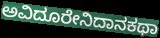
ಅವಿದೂರೇನಿದಾನಕಥಾ